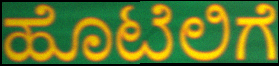
ಹೊಟೆಲಿಗೆ